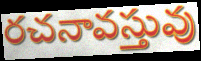
రచనావస్తువు